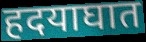
हदयाघात